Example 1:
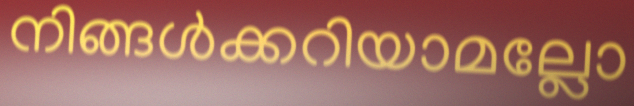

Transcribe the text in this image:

നിങ്ങൾക്കറിയാമല്ലോ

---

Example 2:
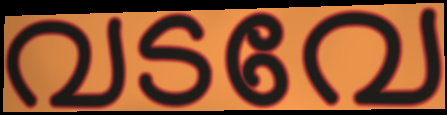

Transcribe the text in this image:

വടവേ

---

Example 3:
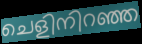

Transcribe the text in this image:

ചെളിനിറഞ്ഞ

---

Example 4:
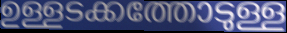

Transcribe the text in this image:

ഉള്ളടക്കത്തോടുള്ള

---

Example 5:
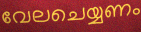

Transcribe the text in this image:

വേലചെയ്യണം